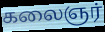
கலைஞர்